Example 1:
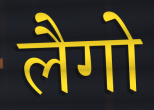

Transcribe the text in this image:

लैगो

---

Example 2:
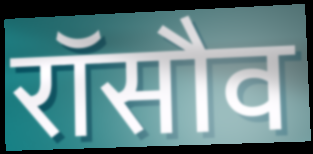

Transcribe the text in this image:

रॉसौव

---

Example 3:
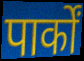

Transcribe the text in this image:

पार्कों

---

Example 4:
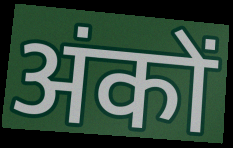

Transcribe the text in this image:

अंकों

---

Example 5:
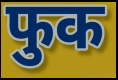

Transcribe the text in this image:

फुक